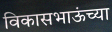
विकासभाऊंच्या